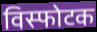
विस्फोटक